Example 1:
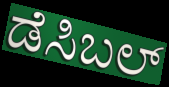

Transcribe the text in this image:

ಡೆಸಿಬಲ್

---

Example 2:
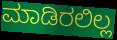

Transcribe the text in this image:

ಮಾಡಿರಲಿಲ್ಲ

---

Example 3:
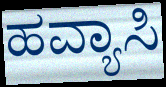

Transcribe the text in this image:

ಹವ್ಯಾಸಿ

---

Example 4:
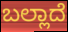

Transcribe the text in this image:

ಬಲ್ಲಾದೆ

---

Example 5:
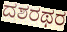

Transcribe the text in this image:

ದಶರಥರ